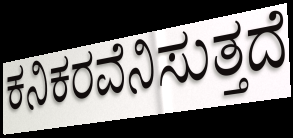
ಕನಿಕರವೆನಿಸುತ್ತದೆ